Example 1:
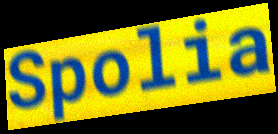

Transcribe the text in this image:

Spolia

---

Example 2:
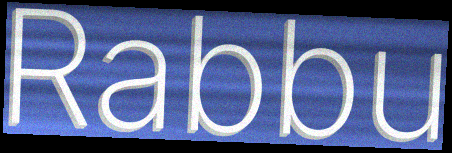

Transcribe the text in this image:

Rabbu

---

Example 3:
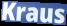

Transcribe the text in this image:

Kraus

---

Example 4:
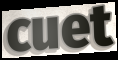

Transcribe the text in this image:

cuet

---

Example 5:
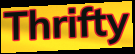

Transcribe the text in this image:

Thrifty